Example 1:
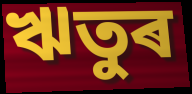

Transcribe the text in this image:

ঋতুৰ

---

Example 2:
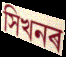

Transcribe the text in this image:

সিখনৰ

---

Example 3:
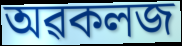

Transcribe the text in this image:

অৱকলজ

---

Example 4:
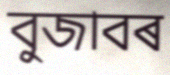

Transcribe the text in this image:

বুজাবৰ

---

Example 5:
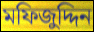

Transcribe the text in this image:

মফিজুদ্দিন